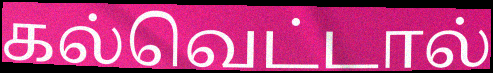
கல்வெட்டால்